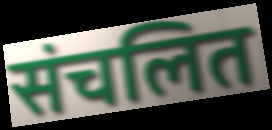
संचलित